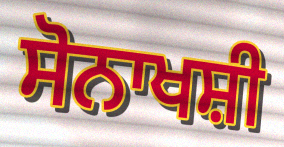
ਸੋਨਾਖਸ਼ੀ